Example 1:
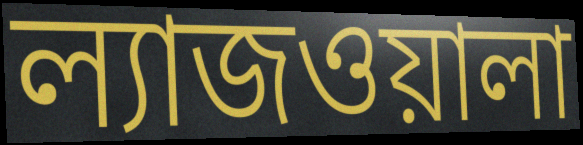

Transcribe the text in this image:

ল্যাজওয়ালা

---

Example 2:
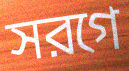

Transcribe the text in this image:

সরগে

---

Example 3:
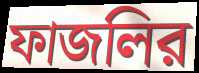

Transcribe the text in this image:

ফাজলির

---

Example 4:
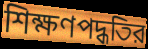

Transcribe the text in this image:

শিক্ষণপদ্ধতির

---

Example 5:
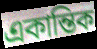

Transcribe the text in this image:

একান্তিক